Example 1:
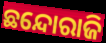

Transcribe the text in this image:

ଛନ୍ଦୋରାଜି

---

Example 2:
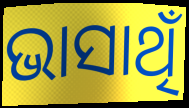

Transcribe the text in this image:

ଭାସାଥିଁ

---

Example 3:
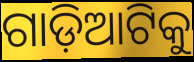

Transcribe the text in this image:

ଗାଡ଼ିଆଟିକୁ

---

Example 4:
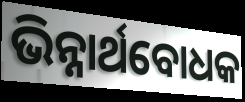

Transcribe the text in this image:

ଭିନ୍ନାର୍ଥବୋଧକ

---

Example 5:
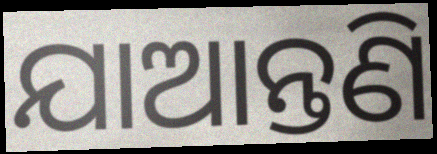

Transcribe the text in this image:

ଯାଆନ୍ତଣି